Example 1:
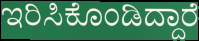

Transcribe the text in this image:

ಇರಿಸಿಕೊಂಡಿದ್ದಾರೆ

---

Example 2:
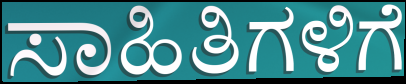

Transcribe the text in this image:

ಸಾಹಿತಿಗಳಿಗೆ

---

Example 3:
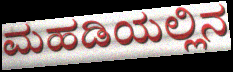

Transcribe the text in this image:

ಮಹಡಿಯಲ್ಲಿನ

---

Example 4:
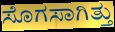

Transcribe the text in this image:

ಸೊಗಸಾಗಿತ್ತು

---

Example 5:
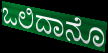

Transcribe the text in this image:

ಒಲಿದಾನೊ